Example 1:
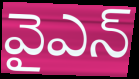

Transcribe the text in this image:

వైఎన్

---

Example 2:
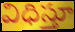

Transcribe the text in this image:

విధిస్తూ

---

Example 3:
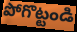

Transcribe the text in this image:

పోగొట్టండి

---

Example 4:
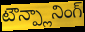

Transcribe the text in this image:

టౌన్ప్లానింగ్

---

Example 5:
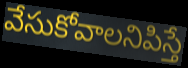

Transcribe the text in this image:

వేసుకోవాలనిపిస్తే